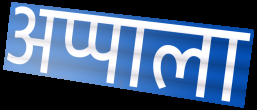
अप्पाला